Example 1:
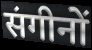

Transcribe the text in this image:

संगीनों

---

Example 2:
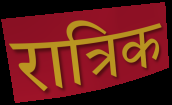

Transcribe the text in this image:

रात्रिक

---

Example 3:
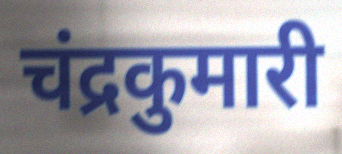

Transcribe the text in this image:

चंद्रकुमारी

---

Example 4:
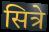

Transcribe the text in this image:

सित्रे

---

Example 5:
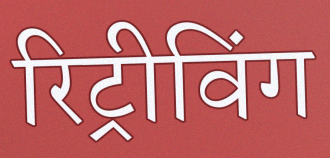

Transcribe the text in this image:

रिट्रीविंग